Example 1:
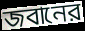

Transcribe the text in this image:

জবানের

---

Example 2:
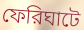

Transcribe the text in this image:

ফেরিঘাটে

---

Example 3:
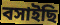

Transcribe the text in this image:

বসাইছি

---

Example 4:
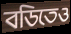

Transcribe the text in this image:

বডিতেও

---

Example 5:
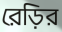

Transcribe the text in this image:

রেড়ির